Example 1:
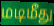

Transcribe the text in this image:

மடிமீது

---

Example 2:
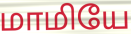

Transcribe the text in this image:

மாமியே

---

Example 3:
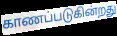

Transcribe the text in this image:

காணப்படுகின்றது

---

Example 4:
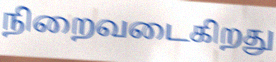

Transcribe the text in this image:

நிறைவடைகிறது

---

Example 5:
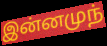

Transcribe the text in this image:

இன்னமுந்